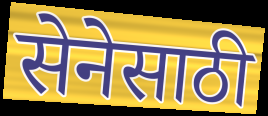
सेनेसाठी